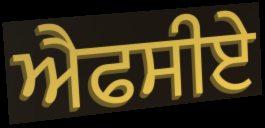
ਐਫਸੀਏ